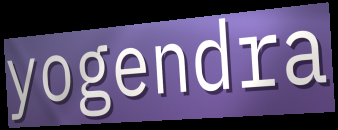
yogendra